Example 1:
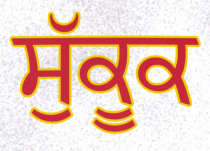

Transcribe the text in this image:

ਸੁੱਕੂਕ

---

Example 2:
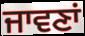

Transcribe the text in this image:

ਜਾਵਣਾਂ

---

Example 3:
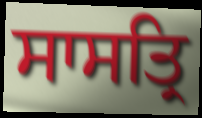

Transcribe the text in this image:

ਸਾਸਤ੍ਰਿ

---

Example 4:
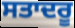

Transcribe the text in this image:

ਸਤਾਦਰੂ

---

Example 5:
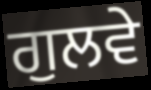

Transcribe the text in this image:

ਗੁਲਵੇ